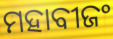
ମହାବୀଜଂ